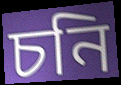
চনি